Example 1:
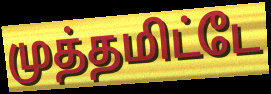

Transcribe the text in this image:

முத்தமிட்டே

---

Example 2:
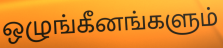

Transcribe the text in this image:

ஒழுங்கீனங்களும்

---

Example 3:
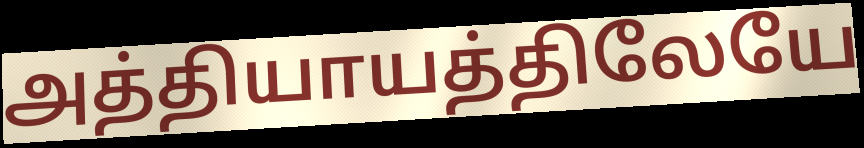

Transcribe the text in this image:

அத்தியாயத்திலேயே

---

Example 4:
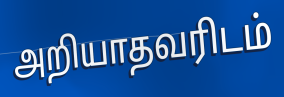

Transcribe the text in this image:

அறியாதவரிடம்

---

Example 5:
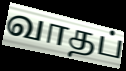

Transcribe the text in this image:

வாதப்